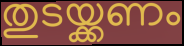
തുടയ്ക്കണം